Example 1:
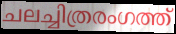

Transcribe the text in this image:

ചലച്ചിത്രരംഗത്ത്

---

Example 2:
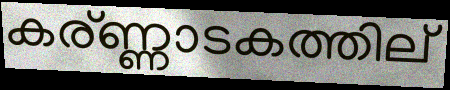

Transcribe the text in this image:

കര്ണ്ണാടകത്തില്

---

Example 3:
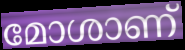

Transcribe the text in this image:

മോശാണ്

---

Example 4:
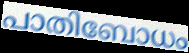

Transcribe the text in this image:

പാതിബോധം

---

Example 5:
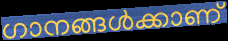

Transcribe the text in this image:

ഗാനങ്ങൾക്കാണ്